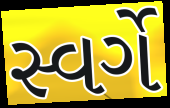
સ્વર્ગે